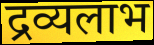
द्रव्यलाभ